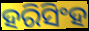
ହରିସିଂହ